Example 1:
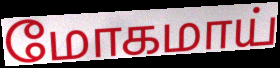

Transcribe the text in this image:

மோகமாய்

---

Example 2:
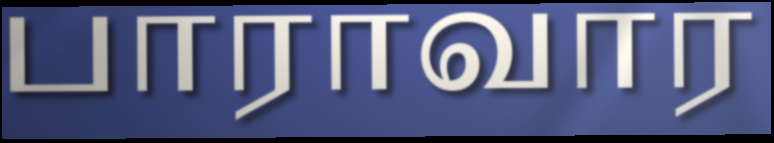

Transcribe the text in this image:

பாராவார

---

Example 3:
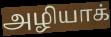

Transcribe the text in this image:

அழியாக்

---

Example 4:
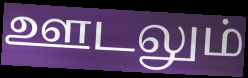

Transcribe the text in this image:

ஊடலும்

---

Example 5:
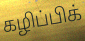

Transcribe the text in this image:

கழிப்பிக்